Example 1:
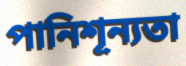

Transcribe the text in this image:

পানিশূন্যতা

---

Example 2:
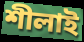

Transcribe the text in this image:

শীলাই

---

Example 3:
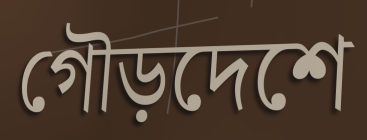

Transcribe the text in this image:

গৌড়দেশে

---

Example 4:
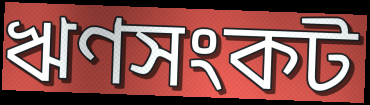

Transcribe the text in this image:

ঋণসংকট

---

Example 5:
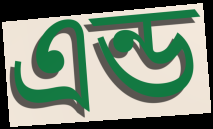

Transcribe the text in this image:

এন্ড